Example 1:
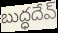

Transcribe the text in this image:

బుద్ధదేవ్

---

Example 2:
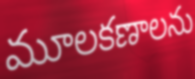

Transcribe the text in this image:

మూలకణాలను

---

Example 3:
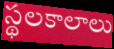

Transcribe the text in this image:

స్థలకాలాలు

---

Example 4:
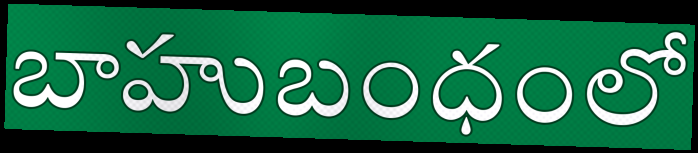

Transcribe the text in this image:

బాహుబంధంలో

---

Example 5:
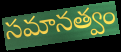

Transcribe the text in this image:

సమానత్వం